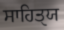
ਸਾਹਿਤੑਯ